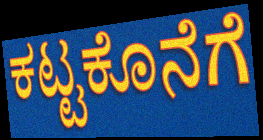
ಕಟ್ಟಕೊನೆಗೆ